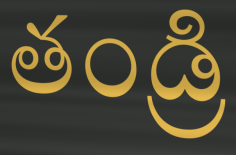
తండ్రి